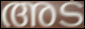
അട